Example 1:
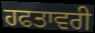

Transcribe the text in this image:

ਹਫਤਾਵਰੀ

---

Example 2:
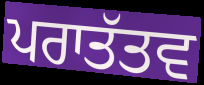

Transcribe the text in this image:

ਪਰਾਤੱਤਵ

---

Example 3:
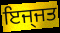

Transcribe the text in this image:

ਇਜ੍ਜਤ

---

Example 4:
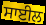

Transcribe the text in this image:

ਸਾਈਲ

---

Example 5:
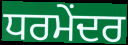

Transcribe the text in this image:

ਧਰਮੇਂਦਰ